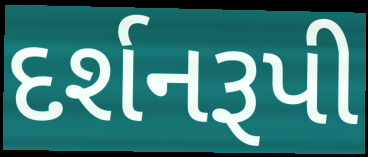
દર્શનરૂપી